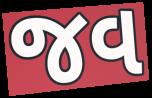
જવ